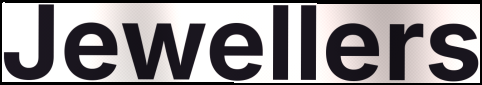
Jewellers